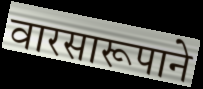
वारसारूपाने